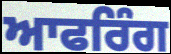
ਆਫਰਿੰਗ